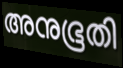
അനുഭൂതി